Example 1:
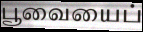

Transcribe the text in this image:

பூவையைப்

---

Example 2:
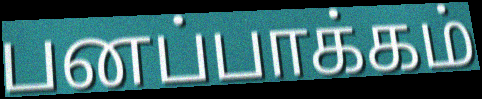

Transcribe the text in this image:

பனப்பாக்கம்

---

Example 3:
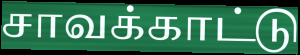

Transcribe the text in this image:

சாவக்காட்டு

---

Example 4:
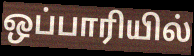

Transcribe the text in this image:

ஒப்பாரியில்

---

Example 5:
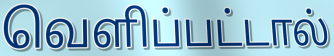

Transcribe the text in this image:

வெளிப்பட்டால்